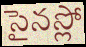
సైనస్లో